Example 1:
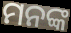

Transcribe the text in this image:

ମନଙ୍କ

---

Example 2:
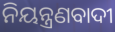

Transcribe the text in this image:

ନିୟନ୍ତ୍ରଣବାଦୀ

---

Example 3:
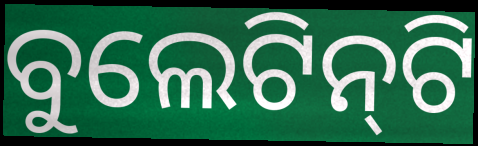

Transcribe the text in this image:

ବୁଲେଟିନ୍‍ଟି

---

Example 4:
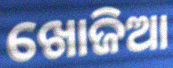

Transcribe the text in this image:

ଖୋଜିଆ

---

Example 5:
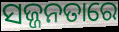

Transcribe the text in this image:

ସଜ୍ଜନତାରେ